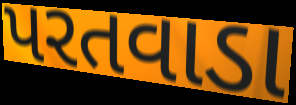
પરતવાડા